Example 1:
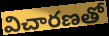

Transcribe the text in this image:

విచారణతో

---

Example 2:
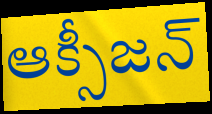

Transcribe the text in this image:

ఆక్సీజన్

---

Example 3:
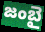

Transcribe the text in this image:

జంబై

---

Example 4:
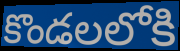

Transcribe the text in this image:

కొండలలోకి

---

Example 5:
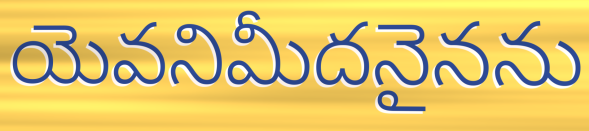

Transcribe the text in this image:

యెవనిమీదనైనను